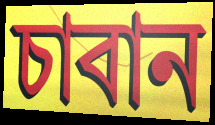
চাবান